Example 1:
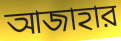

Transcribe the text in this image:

আজাহার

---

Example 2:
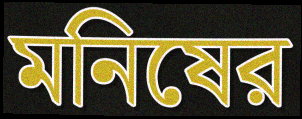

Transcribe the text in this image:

মনিষের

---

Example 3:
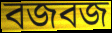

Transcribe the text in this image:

বজবজ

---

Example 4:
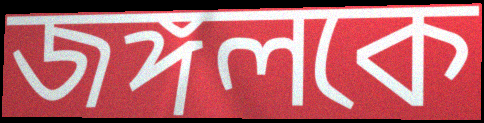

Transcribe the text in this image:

জঙ্গলকে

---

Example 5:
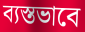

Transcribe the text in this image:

ব্যস্তভাবে